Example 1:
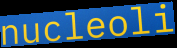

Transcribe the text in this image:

nucleoli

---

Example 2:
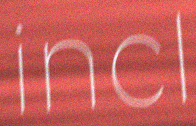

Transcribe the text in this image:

incl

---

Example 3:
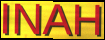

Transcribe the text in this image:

INAH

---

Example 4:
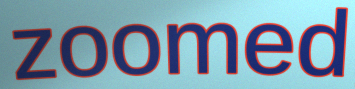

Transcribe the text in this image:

zoomed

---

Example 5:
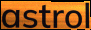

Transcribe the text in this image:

astrol